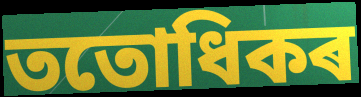
ততোধিকৰ